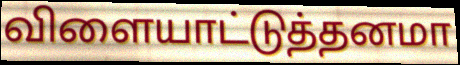
விளையாட்டுத்தனமா